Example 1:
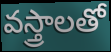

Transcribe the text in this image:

వస్త్రాలతో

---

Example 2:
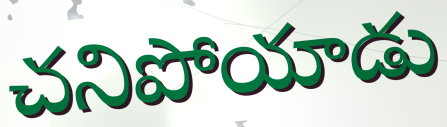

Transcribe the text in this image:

చనిపోయాడు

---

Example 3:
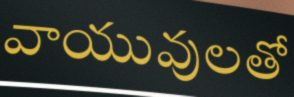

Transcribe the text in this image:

వాయువులతో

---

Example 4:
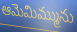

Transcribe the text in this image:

ఆమెమిమ్మును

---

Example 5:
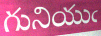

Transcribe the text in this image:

గునియుఁ